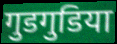
गुडगुडिया